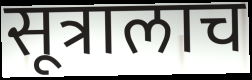
सूत्रालाच